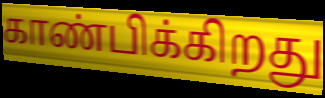
காண்பிக்கிறது